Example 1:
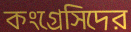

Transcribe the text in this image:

কংগ্রেসিদের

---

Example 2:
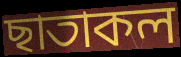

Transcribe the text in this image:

ছাতাকল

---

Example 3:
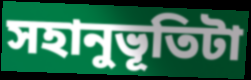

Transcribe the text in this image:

সহানুভূতিটা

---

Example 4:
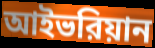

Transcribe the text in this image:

আইভরিয়ান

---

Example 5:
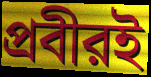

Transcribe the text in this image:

প্রবীরই